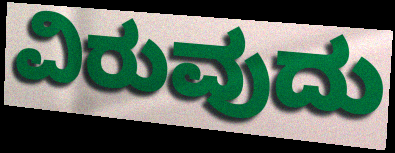
ವಿರುವುದು